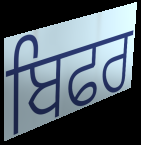
ਬਿਫਰ